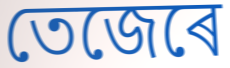
তেজেৰে